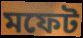
মফেট